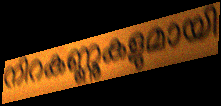
നിറകണ്ണുകളുമായി